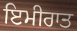
ਇਮੀਰਾਤ